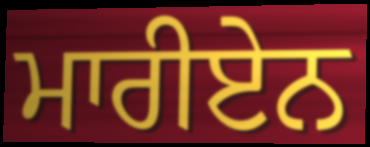
ਮਾਰੀਏਨ